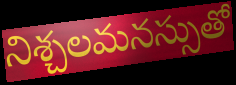
నిశ్చలమనస్సుతో